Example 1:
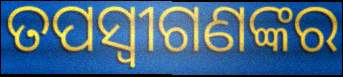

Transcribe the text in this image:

ତପସ୍ୱୀଗଣଙ୍କର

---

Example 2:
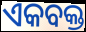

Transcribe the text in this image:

ଏକବକ୍ତ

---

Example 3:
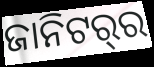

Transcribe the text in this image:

ଜାନିଟର୍‌ର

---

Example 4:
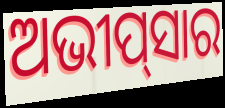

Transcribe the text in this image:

ଅଭୀପ୍‌ସାର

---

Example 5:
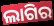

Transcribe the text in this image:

ଲାଗିର